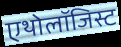
एथोलॉजिस्ट